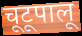
चूटूपालू